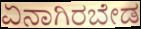
ಏನಾಗಿರಬೇಡ